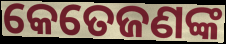
କେତେଜଣଙ୍କ